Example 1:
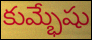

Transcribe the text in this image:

కుమ్భేషు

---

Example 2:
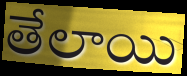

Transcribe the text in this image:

తేలాయి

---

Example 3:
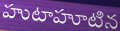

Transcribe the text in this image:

హుటాహూటిన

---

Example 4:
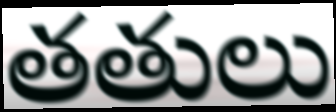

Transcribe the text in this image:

తతులు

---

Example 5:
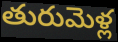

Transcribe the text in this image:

తురుమెళ్ల